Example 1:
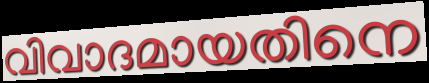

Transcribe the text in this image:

വിവാദമായതിനെ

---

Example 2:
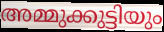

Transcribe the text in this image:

അമ്മുക്കുട്ടിയും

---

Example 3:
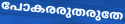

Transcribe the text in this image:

പോകരരുതരുതേ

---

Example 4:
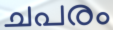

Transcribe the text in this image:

ചപരം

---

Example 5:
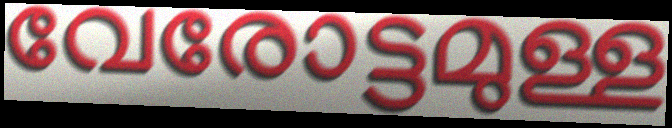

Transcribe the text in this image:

വേരോട്ടമുള്ള